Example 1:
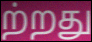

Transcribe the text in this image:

ற்றது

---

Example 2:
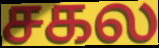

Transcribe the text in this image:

சகல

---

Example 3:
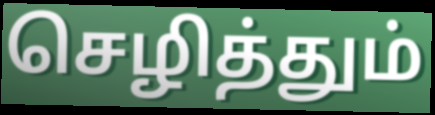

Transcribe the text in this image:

செழித்தும்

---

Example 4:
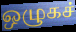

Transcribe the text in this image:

ஒழுகச்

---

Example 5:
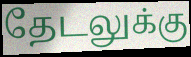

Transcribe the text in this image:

தேடலுக்கு